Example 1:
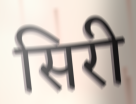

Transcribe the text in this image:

सिरी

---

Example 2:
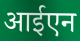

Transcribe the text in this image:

आईएन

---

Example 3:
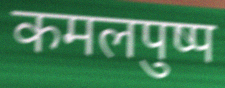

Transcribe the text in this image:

कमलपुष्प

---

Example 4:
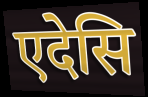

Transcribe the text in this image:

एदेसि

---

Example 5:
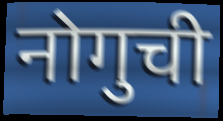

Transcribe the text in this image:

नोगुची